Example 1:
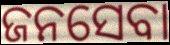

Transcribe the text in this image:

ଜନସେବା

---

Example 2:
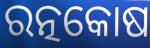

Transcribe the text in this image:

ରତ୍ନକୋଷ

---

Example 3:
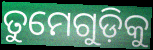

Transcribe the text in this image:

ତୁମେଗୁଡ଼ିକୁ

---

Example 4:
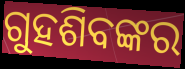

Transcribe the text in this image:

ଗୁହଶିବଙ୍କର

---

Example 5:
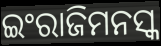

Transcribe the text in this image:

ଇଂରାଜିମନସ୍କ